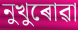
নুখুৰোৱা